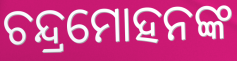
ଚନ୍ଦ୍ରମୋହନଙ୍କ